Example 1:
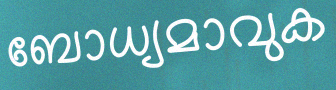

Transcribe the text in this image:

ബോധ്യമാവുക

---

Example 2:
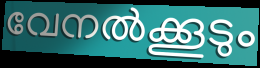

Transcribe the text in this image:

വേനൽക്കൂടും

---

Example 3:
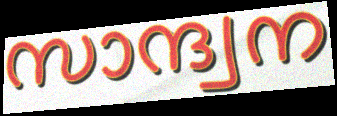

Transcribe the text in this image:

സാന്ദ്വന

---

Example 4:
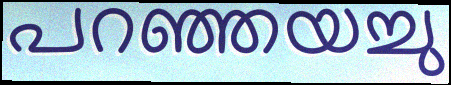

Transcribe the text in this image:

പറഞ്ഞയച്ചു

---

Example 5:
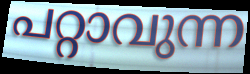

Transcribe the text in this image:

പറ്റാവുന്ന